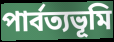
পার্বত্যভূমি